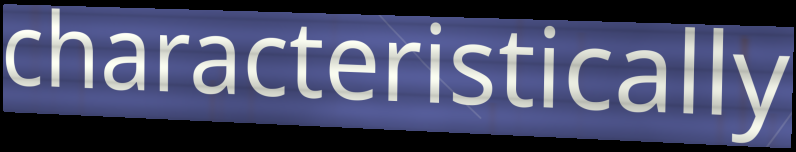
characteristically